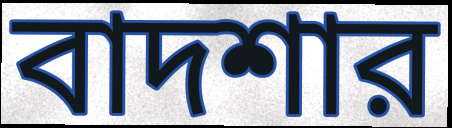
বাদশার